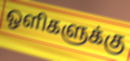
ஒளிகளுக்கு